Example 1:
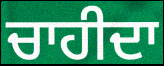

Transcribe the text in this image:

ਚਾਹੀਦਾ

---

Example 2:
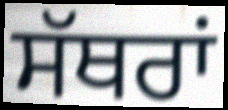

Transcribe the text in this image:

ਸੱਥਰਾਂ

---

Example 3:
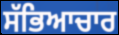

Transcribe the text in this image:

ਸੱਭਿਆਚਾਰ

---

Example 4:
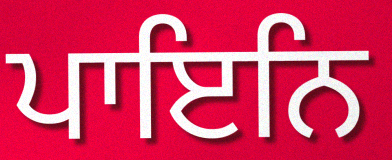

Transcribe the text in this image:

ਪਾਇਨਿ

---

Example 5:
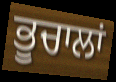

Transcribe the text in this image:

ਭੂਚਾਲਾਂ